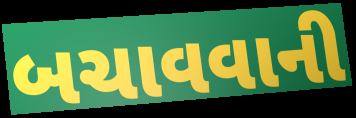
બચાવવાની